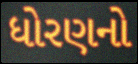
ધોરણનો